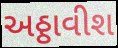
અઠ્ઠાવીશ